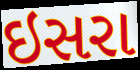
ઇસરા